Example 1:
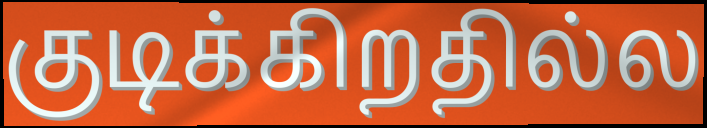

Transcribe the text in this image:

குடிக்கிறதில்ல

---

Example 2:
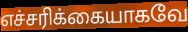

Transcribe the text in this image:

எச்சரிக்கையாகவே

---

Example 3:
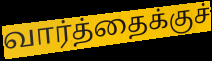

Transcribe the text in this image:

வார்த்தைக்குச்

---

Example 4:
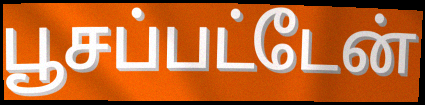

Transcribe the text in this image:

பூசப்பட்டேன்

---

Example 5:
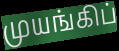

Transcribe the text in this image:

முயங்கிப்